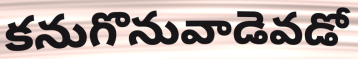
కనుగొనువాడెవడో